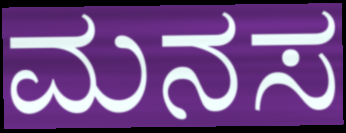
ಮನಸ